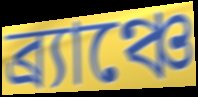
ব্র্যাঞ্চে